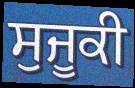
ਸੁਜੂਕੀ